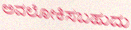
ಅವಲೋಕಿಸಬಹುದು